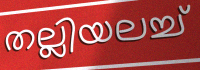
തല്ലിയലച്ച്